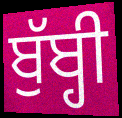
ਬੁੱਬ੍ਹੀ